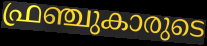
ഫ്രഞ്ചുകാരുടെ